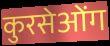
कुरसेओंग